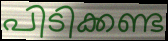
പിടിക്കണ്ട